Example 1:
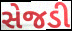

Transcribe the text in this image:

સેજડી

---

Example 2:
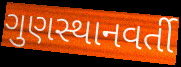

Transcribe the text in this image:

ગુણસ્થાનવર્તી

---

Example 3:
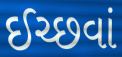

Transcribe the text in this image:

ઈચ્છવાં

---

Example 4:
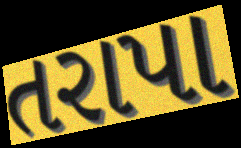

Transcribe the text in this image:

તરાપા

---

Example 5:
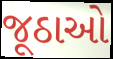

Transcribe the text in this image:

જૂઠાઓ